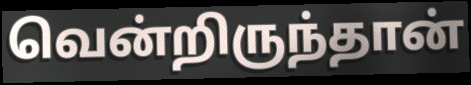
வென்றிருந்தான்